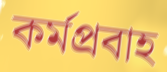
কর্মপ্রবাহ